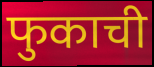
फुकाची